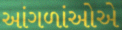
આંગળાંઓએ